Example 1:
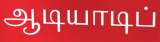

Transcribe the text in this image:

ஆடியாடிப்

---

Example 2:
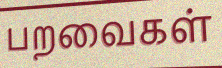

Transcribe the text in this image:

பறவைகள்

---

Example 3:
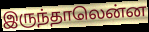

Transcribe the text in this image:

இருந்தாலென்ன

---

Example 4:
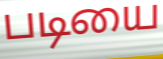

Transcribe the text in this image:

படியை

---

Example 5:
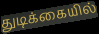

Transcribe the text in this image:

துடிக்கையில்